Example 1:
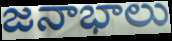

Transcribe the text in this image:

జనాభాలు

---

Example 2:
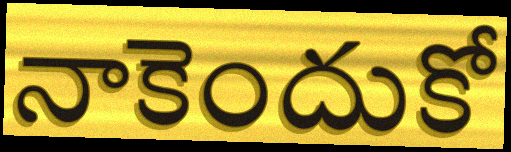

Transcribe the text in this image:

నాకెందుకో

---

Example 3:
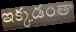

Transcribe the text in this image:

ఇక్కడంతా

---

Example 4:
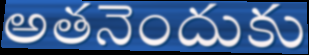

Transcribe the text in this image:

అతనెందుకు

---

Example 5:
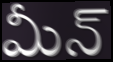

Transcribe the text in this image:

మీన్